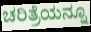
ಚರಿತ್ರೆಯನ್ನೂ